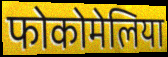
फोकोमेलिया